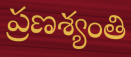
ప్రణశ్యంతి